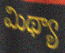
మిథ్యా